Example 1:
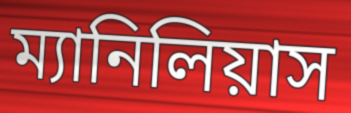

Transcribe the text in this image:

ম্যানিলিয়াস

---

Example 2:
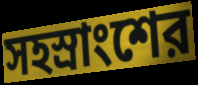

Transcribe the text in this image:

সহস্রাংশের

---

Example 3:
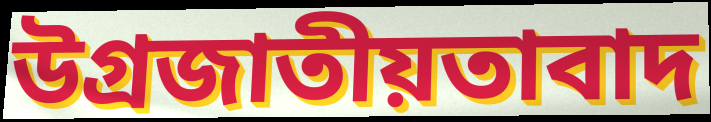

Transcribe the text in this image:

উগ্রজাতীয়তাবাদ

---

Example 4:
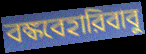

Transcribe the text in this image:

বঙ্কবেহারিবাবু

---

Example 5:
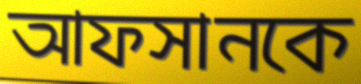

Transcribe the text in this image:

আফসানকে